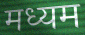
मध्यम